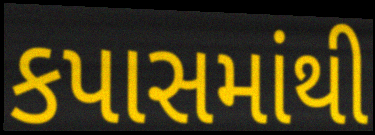
કપાસમાંથી